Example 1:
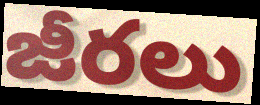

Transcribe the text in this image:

జీరలు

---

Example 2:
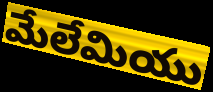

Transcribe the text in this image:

మేలేమియు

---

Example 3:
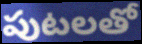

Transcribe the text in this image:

పుటలతో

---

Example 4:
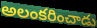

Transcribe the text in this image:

అలంకరించాడు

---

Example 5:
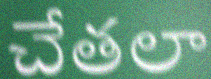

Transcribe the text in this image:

చేతలా